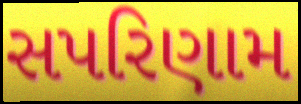
સપરિણામ